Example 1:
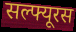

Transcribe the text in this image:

सल्फ्यूरस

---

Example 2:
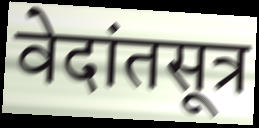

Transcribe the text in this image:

वेदांतसूत्र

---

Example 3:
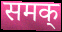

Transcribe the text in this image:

समक्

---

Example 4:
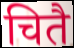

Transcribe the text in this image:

चितै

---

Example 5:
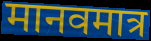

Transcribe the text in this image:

मानवमात्र